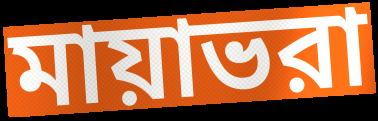
মায়াভরা